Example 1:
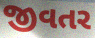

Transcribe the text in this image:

જીવતર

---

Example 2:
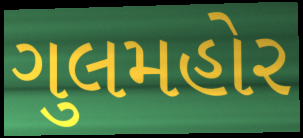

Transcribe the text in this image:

ગુલમહોર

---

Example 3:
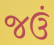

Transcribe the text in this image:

જઉં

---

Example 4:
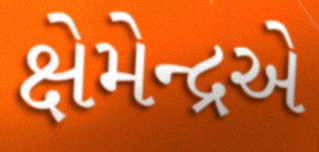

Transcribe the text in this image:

ક્ષેમેન્દ્રએ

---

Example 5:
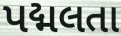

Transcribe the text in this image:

પદ્મલતા